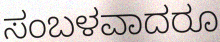
ಸಂಬಳವಾದರೂ